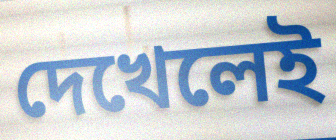
দেখেলেই